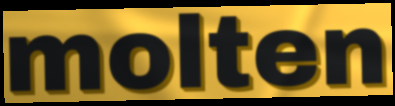
molten